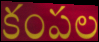
కంపల